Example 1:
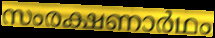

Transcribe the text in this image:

സംരക്ഷണാർഥം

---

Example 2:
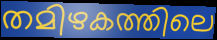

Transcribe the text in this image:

തമിഴകത്തിലെ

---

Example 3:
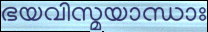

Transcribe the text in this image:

ഭയവിസ്മയാന്ധാഃ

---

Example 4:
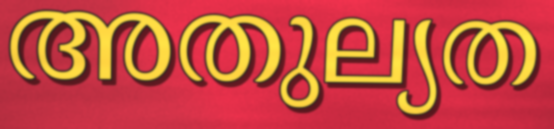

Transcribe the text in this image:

അതുല്യത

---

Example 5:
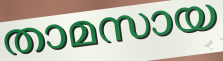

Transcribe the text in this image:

താമസായ